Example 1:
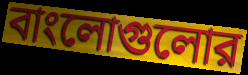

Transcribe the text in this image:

বাংলোগুলোর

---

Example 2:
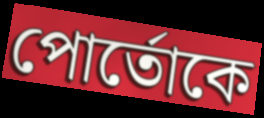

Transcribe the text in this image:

পোর্তোকে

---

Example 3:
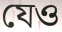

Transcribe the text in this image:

যেও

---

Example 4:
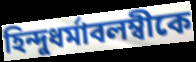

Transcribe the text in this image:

হিন্দুধর্মাবলম্বীকে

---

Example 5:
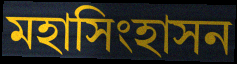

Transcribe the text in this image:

মহাসিংহাসন